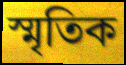
স্মৃতিক